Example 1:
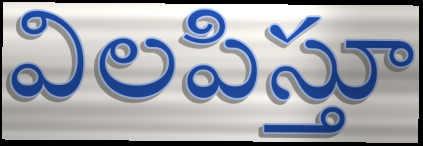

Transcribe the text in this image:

విలపిస్తూ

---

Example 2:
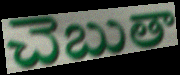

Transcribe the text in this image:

చెబుతా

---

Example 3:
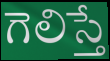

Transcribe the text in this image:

గెలిస్తే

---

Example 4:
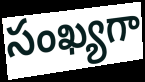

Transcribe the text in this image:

సంఖ్యగా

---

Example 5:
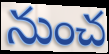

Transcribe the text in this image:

నుంచ